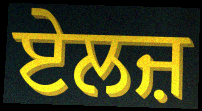
ਏਲਜ਼